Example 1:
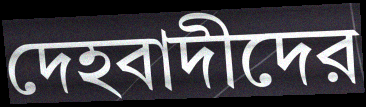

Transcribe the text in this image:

দেহবাদীদের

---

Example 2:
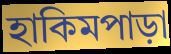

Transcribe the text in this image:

হাকিমপাড়া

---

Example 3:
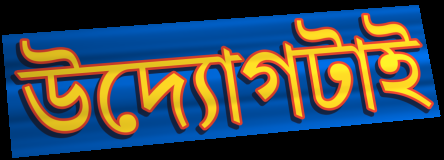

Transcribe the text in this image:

উদ্যোগটাই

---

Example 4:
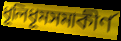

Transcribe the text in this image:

ধূলিধূমসমাকীর্ণ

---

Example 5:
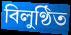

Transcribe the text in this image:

বিলুণ্ঠিত